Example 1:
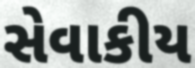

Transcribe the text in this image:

સેવાકીય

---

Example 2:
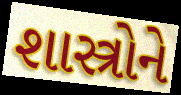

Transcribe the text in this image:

શાસ્ત્રોને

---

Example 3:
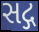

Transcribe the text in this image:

સદ્ગ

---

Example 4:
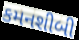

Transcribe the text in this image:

કમનશીબી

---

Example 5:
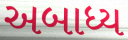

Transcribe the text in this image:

અબાધ્ય